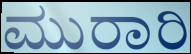
ಮುರಾರಿ